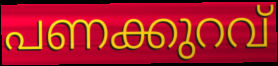
പണക്കുറവ്